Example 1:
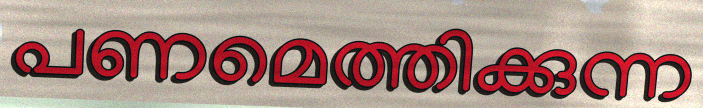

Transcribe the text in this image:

പണമെത്തിക്കുന്ന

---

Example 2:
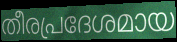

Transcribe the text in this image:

തീരപ്രദേശമായ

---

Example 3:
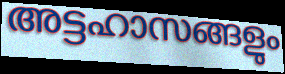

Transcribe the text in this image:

അട്ടഹാസങ്ങളും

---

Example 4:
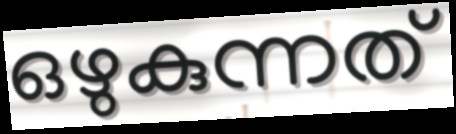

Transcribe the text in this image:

ഒഴുകുന്നത്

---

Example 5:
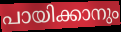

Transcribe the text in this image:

പായിക്കാനും